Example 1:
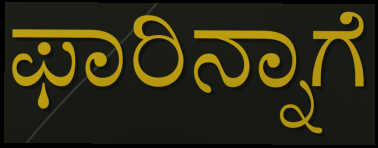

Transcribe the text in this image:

ಫಾರಿನ್ನಾಗೆ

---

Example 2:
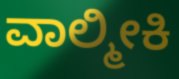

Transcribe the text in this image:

ವಾಲ್ಮೀಕಿ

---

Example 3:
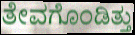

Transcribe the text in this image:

ತೇವಗೊಂಡಿತ್ತು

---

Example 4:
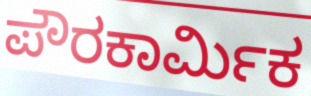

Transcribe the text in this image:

ಪೌರಕಾರ್ಮಿಕ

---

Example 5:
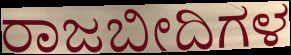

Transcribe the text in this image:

ರಾಜಬೀದಿಗಳ